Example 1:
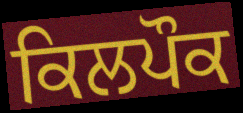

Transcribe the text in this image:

ਕਿਲਪੌਕ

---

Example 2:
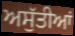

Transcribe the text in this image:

ਅਸੁੱਤੀਆਂ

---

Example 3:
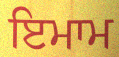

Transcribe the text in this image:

ਇਮਾਮ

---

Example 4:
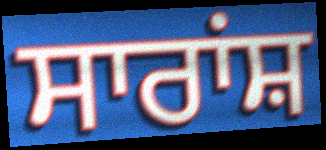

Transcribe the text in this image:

ਸਾਰਾਂਸ਼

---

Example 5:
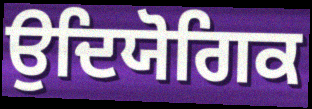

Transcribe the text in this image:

ਉਦਿਯੋਗਿਕ